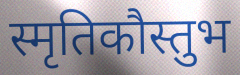
स्मृतिकौस्तुभ